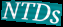
NTDs